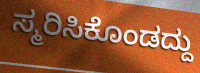
ಸ್ಮರಿಸಿಕೊಂಡದ್ದು